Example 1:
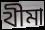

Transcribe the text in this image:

থীমা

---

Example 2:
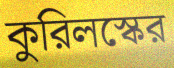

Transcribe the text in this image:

কুরিলস্কের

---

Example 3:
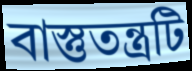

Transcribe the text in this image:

বাস্তুতন্ত্রটি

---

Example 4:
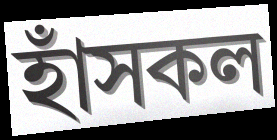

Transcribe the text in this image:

হাঁসকল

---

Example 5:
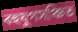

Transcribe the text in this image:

বহুযুগসঞ্চিত